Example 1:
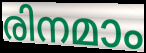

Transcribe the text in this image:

രിനമാം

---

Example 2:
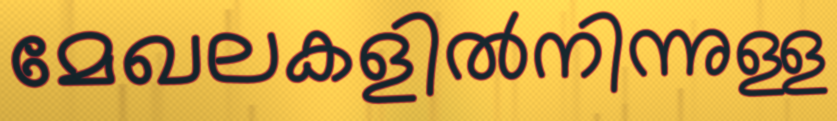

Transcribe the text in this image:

മേഖലകളിൽനിന്നുള്ള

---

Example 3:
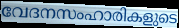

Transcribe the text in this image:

വേദനസംഹാരികളുടെ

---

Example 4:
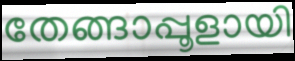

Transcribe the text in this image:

തേങ്ങാപ്പൂളായി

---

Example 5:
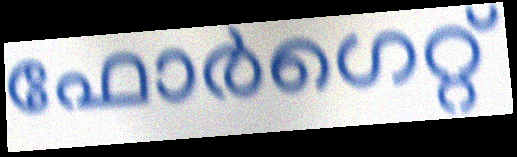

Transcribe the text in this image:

ഫോർഗെറ്റ്